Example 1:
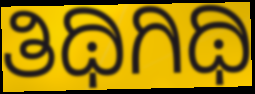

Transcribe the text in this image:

ತಿಥಿಗಿಥಿ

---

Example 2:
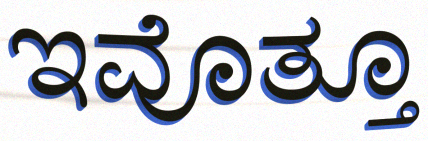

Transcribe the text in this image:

ಇವೊತ್ತೂ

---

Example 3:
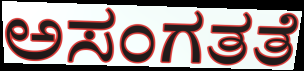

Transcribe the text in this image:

ಅಸಂಗತತೆ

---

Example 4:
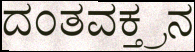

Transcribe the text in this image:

ದಂತವಕ್ತ್ರನ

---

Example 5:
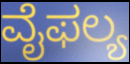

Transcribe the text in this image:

ವೈಫಲ್ಯ